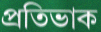
প্ৰতিভাক